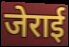
जेराई